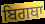
ਬਿਗਥਾ